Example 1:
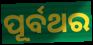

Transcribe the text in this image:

ପୂର୍ବଥର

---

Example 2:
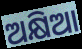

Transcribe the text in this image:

ଅକ୍ଷିଆ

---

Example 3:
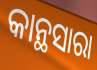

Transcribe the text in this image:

କାନ୍ଥସାରା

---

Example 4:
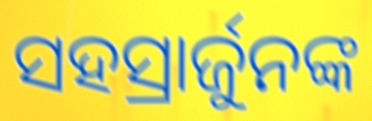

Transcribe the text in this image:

ସହସ୍ରାର୍ଜୁନଙ୍କ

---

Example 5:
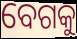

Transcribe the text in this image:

ବେଗକୁ